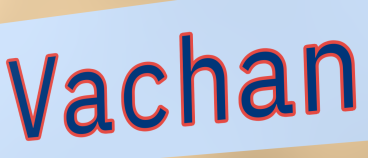
Vachan